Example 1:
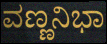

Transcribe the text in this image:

ವಣ್ಣನಿಭಾ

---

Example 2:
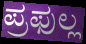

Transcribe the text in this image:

ಪ್ರಫುಲ್ಲ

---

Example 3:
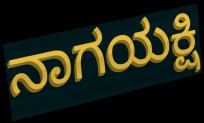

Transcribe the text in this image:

ನಾಗಯಕ್ಷಿ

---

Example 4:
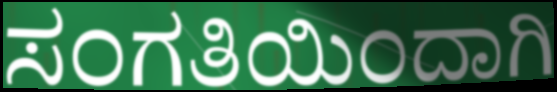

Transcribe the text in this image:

ಸಂಗತಿಯಿಂದಾಗಿ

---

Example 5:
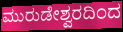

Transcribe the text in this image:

ಮುರುಡೇಶ್ವರದಿಂದ